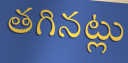
తగినట్లు